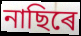
নাছিৰে